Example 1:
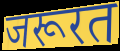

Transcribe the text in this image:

जरूरत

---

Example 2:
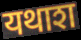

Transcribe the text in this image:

यथाश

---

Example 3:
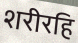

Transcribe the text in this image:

शरीरहि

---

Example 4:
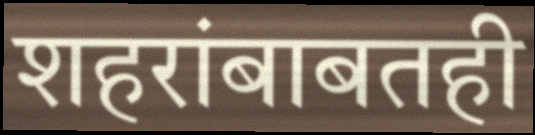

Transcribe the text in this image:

शहरांबाबतही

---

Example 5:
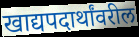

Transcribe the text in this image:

खाद्यपदार्थांवरील